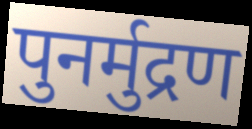
पुनर्मुद्रण